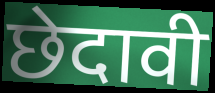
छेदावी